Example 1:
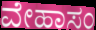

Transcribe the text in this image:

ವೇಹಾಸಂ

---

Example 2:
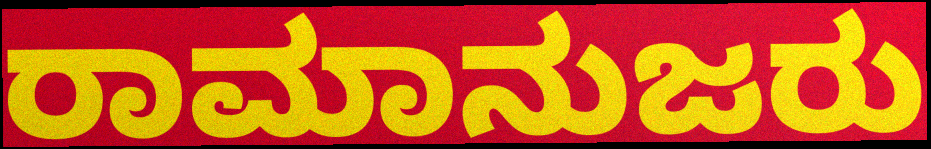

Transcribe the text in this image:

ರಾಮಾನುಜರು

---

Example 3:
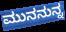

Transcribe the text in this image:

ಮುನನುನ್ನ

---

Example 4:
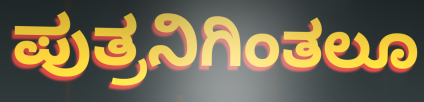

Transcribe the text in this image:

ಪುತ್ರನಿಗಿಂತಲೂ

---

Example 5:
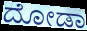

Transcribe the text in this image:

ದೋಡಾ